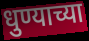
धुण्याच्या